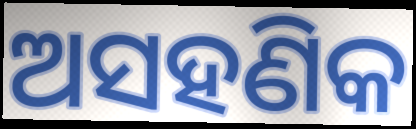
ଅସହଣିକ